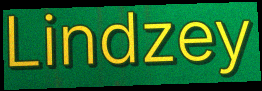
Lindzey